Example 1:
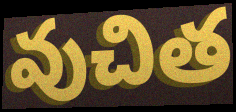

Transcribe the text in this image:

వుచిత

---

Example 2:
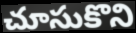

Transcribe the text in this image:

చూసుకొని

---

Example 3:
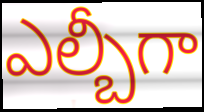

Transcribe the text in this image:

ఎల్బీగా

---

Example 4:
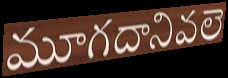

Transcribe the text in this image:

మూగదానివలె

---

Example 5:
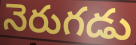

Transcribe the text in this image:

నెరుగడు